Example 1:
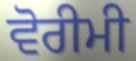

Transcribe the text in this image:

ਵੋਰੀਮੀ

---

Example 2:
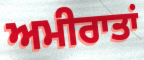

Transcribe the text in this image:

ਅਮੀਰਾਤਾਂ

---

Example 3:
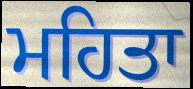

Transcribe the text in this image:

ਮਹਿਤਾ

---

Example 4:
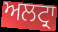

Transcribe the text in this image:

ਅਲਟ੍ਰਾ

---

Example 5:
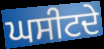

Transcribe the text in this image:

ਘਸੀਟਦੇ